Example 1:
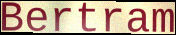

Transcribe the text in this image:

Bertram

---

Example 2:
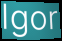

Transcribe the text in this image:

Igor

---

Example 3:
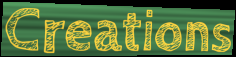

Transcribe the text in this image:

Creations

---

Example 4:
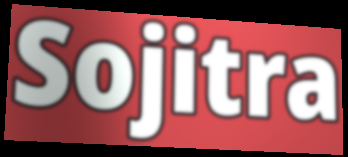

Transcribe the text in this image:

Sojitra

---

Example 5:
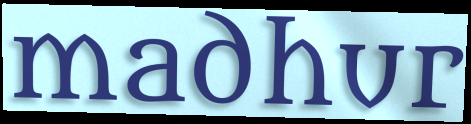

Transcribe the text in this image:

madhur